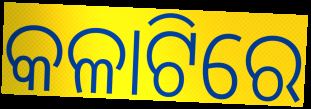
କଳାଟିରେ